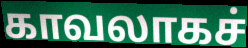
காவலாகச்